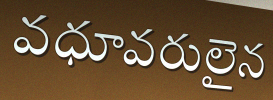
వధూవరులైన